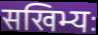
सखिभ्यः